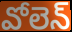
వోలెన్